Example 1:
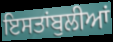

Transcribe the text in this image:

ਇਸਤਾਂਬੁਲੀਆਂ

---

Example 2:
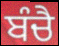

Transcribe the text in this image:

ਬੰਚੈ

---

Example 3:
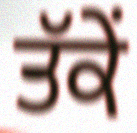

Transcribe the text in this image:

ਤੱਕੇਂ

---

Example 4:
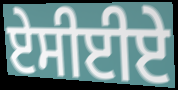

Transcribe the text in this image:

ਏਸੀਈਏ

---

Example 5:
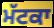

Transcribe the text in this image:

ਮੱਟਕਾ